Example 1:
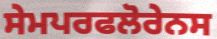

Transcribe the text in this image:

ਸੇਮਪਰਫਲੋਰੇਨਸ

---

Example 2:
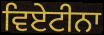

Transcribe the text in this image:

ਵਿਏਟੀਨਾ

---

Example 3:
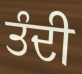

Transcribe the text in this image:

ਤੰਦੀ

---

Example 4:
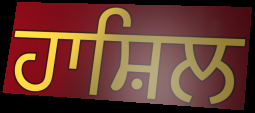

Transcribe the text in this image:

ਹਾਸ਼ਿਲ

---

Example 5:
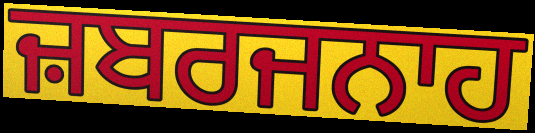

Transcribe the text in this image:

ਜ਼ਬਰਜਨਾਹ